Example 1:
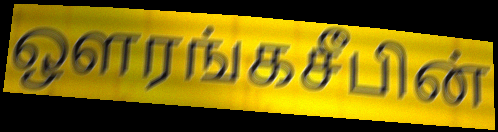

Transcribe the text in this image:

ஔரங்கசீபின்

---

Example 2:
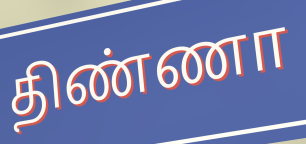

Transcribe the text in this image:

திண்ணா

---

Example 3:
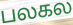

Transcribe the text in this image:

பலகல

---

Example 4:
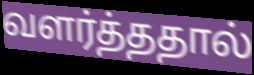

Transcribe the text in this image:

வளர்த்ததால்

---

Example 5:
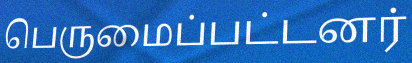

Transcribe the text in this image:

பெருமைப்பட்டனர்